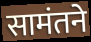
सामंतने